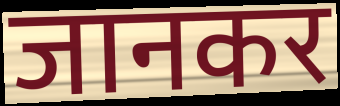
जानकर